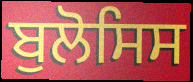
ਬੁਲੋਸਿਸ